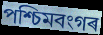
পশ্চিমবংগৰ